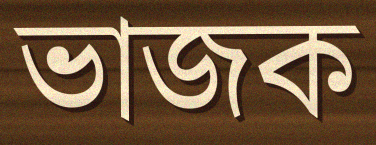
ভাজক